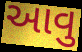
આવુ